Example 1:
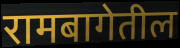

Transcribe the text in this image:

रामबागेतील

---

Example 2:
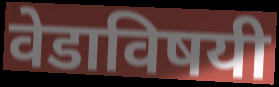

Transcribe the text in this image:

वेडाविषयी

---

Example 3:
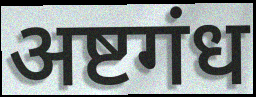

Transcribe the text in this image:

अष्टगंध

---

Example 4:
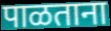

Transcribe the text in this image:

पाळताना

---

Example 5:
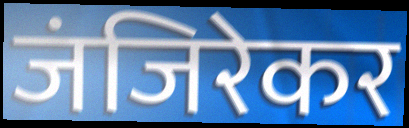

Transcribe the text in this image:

जंजिरेकर